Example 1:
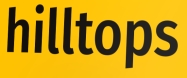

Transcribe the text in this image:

hilltops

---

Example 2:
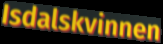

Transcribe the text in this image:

Isdalskvinnen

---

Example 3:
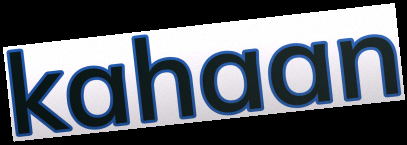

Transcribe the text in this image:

kahaan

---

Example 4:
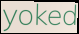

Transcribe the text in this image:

yoked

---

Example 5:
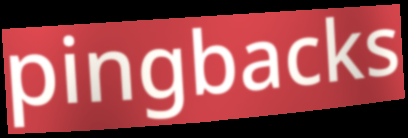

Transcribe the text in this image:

pingbacks